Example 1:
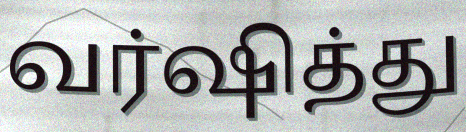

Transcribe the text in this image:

வர்ஷித்து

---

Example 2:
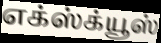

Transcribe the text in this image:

எக்ஸ்க்யூஸ்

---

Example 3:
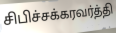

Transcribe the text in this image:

சிபிச்சக்கரவர்த்தி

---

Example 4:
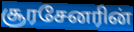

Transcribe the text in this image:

சூரசேனரின்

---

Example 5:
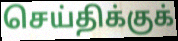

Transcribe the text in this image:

செய்திக்குக்